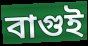
বাগুই